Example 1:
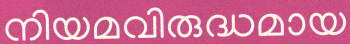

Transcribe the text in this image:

നിയമവിരുദ്ധമായ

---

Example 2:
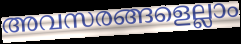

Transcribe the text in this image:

അവസരങ്ങളെല്ലാം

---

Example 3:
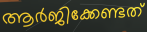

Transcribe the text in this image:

ആർജിക്കേണ്ടത്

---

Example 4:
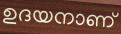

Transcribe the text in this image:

ഉദയനാണ്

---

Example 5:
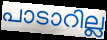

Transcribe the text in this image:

പാടാറില്ല